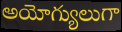
అయోగ్యులుగా